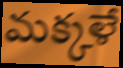
మక్కళే